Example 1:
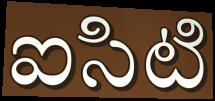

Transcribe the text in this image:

ఐసిటి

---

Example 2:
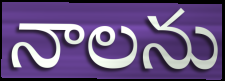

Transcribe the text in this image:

నాలను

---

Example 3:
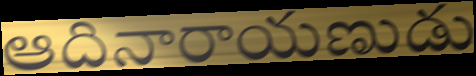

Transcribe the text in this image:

ఆదినారాయణుడు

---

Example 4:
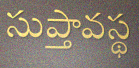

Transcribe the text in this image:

సుప్తావస్థ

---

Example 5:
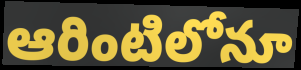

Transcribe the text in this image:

ఆరింటిలోనూ